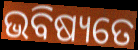
ଭବିଷ୍ୟତେ